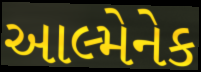
આલ્મેનેક